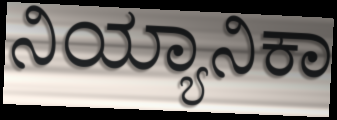
ನಿಯ್ಯಾನಿಕಾ